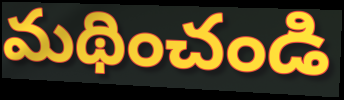
మథించండి